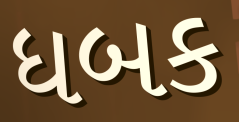
ધબક